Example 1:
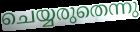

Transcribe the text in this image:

ചെയ്യരുതെന്നു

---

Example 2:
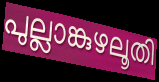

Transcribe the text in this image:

പുല്ലാങ്കുഴലൂതി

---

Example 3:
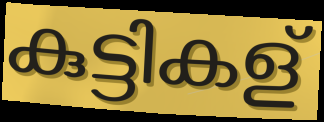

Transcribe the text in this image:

കുട്ടികള്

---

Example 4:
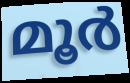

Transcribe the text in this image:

മൂർ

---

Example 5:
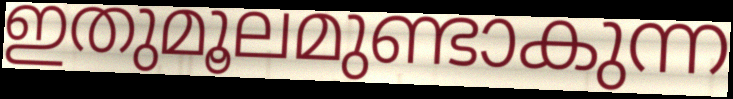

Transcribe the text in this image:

ഇതുമൂലമുണ്ടാകുന്ന